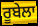
ਰੂਬੇਲਾ